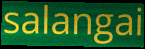
salangai